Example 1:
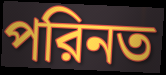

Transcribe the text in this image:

পরিনত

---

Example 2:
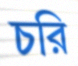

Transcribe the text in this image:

চরি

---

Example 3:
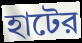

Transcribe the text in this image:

হাটের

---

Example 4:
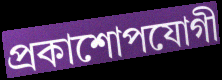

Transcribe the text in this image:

প্রকাশোপযোগী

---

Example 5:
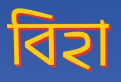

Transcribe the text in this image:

বিহা